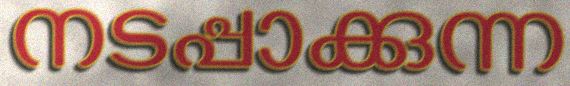
നടപ്പാക്കുന്ന